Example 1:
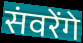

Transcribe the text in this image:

संवरेंगे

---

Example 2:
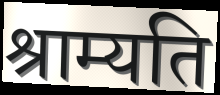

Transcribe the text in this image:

श्राम्यति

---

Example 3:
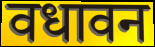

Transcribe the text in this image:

वधावन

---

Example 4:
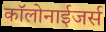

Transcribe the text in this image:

कॉलोनाईजर्स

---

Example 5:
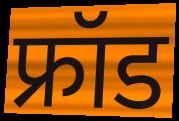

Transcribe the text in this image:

फ्रॉड